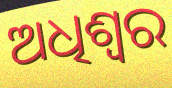
ଅଧିଶ୍ବର